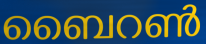
ബൈറൺ